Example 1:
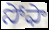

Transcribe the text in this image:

సోఫా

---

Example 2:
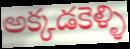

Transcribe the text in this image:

అక్కడకెళ్ళి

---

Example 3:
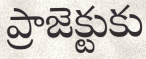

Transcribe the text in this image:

ప్రాజెక్టుకు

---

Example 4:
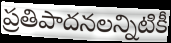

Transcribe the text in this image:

ప్రతిపాదనలన్నిటికీ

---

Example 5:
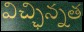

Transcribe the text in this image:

విచ్ఛిన్నత